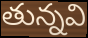
తున్నవి